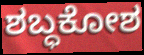
ಶಬ್ಧಕೋಶ